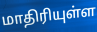
மாதிரியுள்ள